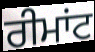
ਰੀਮਾਂਟ